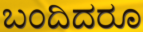
ಬಂದಿದರೂ